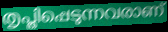
തൃപ്തിപ്പെടുന്നവരാണ്